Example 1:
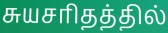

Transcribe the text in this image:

சுயசரிதத்தில்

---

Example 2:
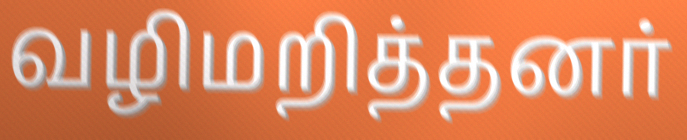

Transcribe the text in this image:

வழிமறித்தனர்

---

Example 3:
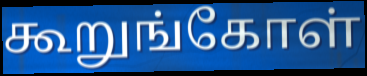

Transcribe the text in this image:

கூறுங்கோள்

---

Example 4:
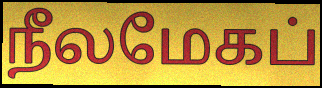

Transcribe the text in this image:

நீலமேகப்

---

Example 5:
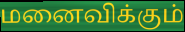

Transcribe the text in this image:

மனைவிக்கும்